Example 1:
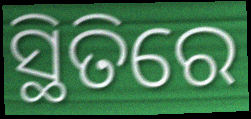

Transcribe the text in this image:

ସ୍ଥିତିରେ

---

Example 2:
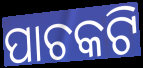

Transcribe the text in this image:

ପାଚକଟି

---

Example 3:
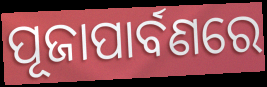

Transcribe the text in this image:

ପୂଜାପାର୍ବଣରେ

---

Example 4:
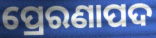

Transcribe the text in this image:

ପ୍ରେରଣାପଦ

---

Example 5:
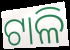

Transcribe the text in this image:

ଟାଳି